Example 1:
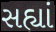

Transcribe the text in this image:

સહ્યાં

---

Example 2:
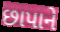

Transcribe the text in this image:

છાપાને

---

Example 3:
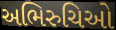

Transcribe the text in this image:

અભિરુચિઓ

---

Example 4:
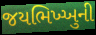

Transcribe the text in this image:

જયભિખ્ખુની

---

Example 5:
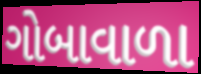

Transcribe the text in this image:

ગોબાવાળા